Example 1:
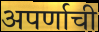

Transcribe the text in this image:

अपर्णाची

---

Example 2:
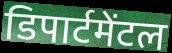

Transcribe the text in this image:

डिपार्टमेंटल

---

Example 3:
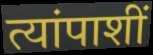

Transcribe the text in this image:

त्यांपाशीं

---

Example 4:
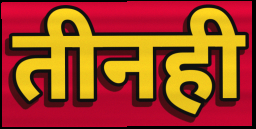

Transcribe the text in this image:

तीनही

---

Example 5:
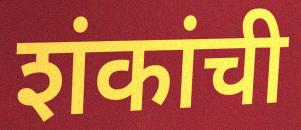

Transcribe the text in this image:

शंकांची